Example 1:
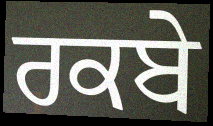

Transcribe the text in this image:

ਰਕਬੇ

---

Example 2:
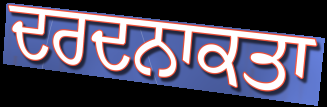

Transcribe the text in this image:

ਦਰਦਨਾਕਤਾ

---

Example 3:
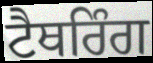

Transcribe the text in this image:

ਟੈਥਰਿੰਗ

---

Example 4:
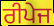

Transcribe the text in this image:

ਰੀਪੇਜ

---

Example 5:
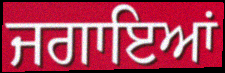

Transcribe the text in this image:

ਜਗਾਇਆਂ